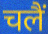
चलैं